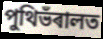
পুথিভঁৰালত